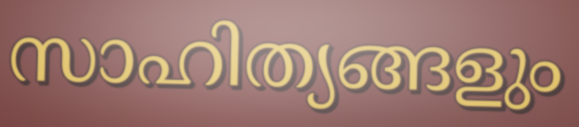
സാഹിത്യങ്ങളും